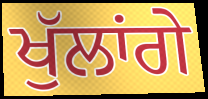
ਖੁੱਲਾਂਗੇ